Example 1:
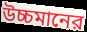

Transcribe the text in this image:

উচ্চমানের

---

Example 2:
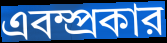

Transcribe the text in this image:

এবম্প্রকার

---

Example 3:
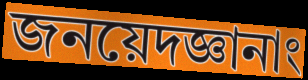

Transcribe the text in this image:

জনয়েদজ্ঞানাং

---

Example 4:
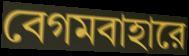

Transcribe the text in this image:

বেগমবাহারে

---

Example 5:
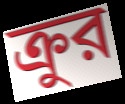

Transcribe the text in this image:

ক্রুর